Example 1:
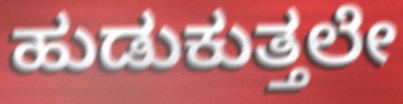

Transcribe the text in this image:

ಹುಡುಕುತ್ತಲೇ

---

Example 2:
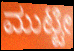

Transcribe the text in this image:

ಮುಟ್ಟೀ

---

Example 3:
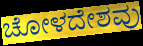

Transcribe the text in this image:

ಚೋಳದೇಶವು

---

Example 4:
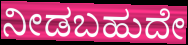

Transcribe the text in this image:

ನೀಡಬಹುದೇ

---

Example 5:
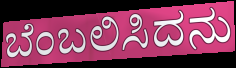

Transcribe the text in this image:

ಬೆಂಬಲಿಸಿದನು